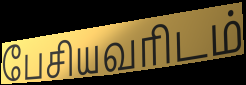
பேசியவரிடம்